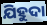
ଯିହୁଦା